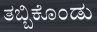
ತಬ್ಬಿಕೊಂಡು